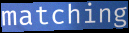
matching